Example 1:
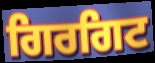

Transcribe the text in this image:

ਗਿਰਗਿਟ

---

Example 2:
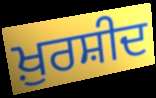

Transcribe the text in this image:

ਖ਼ੁਰਸ਼ੀਦ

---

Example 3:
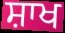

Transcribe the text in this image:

ਸ਼ਾਖ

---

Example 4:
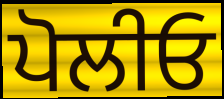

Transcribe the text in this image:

ਪੋਲੀਓ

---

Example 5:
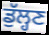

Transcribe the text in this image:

ਡੁੱਲ੍ਹਣ